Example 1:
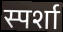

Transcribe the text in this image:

स्पर्शा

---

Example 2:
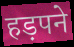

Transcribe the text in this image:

हड़पने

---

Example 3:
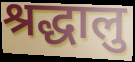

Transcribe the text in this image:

श्रद्धालु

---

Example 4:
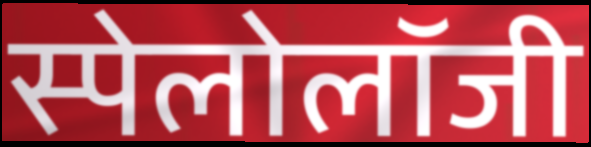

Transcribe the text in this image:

स्पेलोलॉजी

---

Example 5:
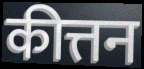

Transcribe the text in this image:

कीत्तन